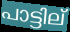
പാട്ടില്